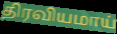
திரவியமாய்